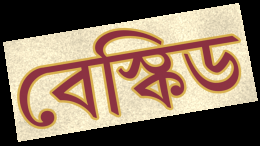
বেস্কিড